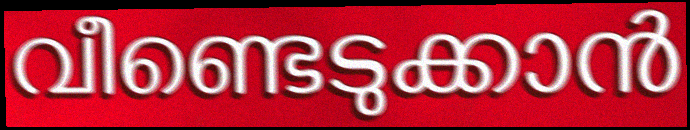
വീണ്ടെടുക്കാൻ